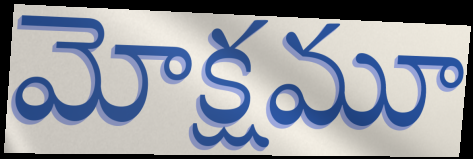
మోక్షమూ